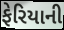
ફેરિયાની